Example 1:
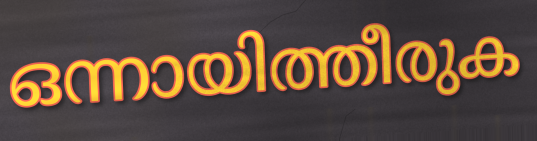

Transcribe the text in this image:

ഒന്നായിത്തീരുക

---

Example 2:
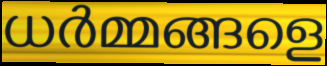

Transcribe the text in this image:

ധർമ്മങ്ങളെ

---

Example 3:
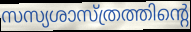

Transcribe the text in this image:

സസ്യശാസ്ത്രത്തിന്റെ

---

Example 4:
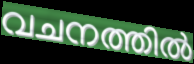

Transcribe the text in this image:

വചനത്തിൽ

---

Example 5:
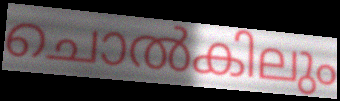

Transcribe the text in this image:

ചൊൽകിലും